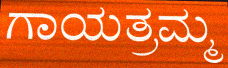
ಗಾಯತ್ರಮ್ಮ